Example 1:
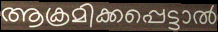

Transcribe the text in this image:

ആക്രമിക്കപ്പെട്ടാൽ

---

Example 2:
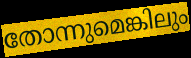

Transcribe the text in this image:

തോന്നുമെങ്കിലും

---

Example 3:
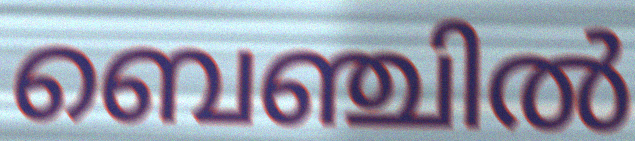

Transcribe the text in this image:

ബെഞ്ചിൽ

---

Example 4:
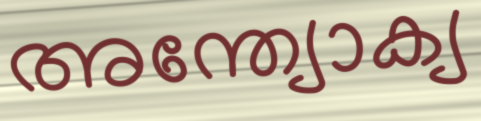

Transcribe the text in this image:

അന്ത്യോക്യ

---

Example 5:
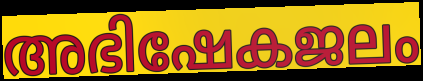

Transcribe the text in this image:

അഭിഷേകജലം